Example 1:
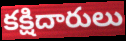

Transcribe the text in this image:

కక్షిదారులు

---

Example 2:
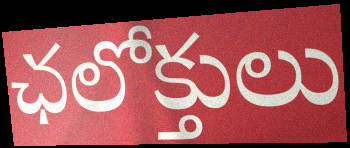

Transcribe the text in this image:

ఛలోక్తులు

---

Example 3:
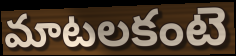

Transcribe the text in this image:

మాటలకంటె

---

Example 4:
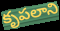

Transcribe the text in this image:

కృపలాని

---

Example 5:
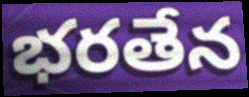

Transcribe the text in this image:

భరతేన